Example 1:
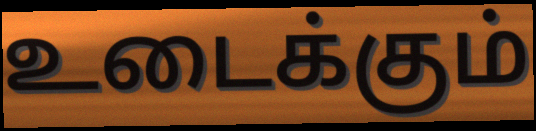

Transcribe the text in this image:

உடைக்கும்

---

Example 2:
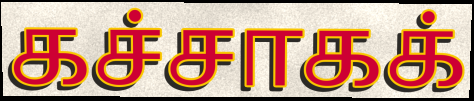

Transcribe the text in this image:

கச்சாகக்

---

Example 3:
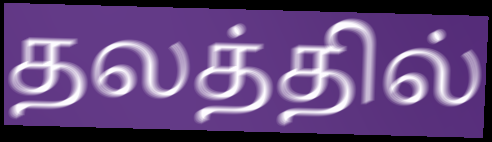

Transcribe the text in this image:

தலத்தில்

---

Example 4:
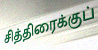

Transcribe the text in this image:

சித்திரைக்குப்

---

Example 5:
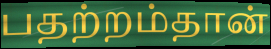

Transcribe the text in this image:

பதற்றம்தான்